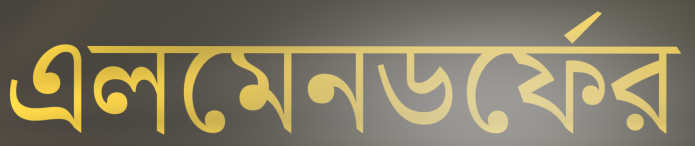
এলমেনডর্ফের